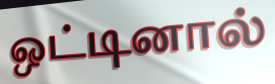
ஒட்டினால்